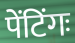
पेंटिंगः